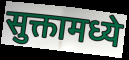
सुक्तामध्ये